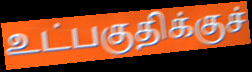
உட்பகுதிக்குச்